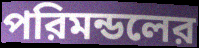
পরিমন্ডলের